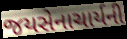
જયસેનાચાર્યની